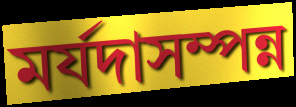
মৰ্যদাসম্পন্ন